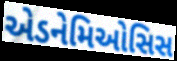
એડનેમિઓસિસ